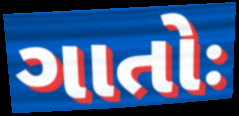
ગાતોઃ